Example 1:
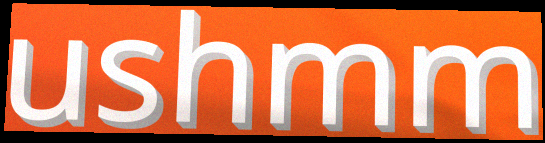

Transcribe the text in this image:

ushmm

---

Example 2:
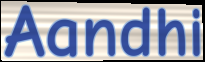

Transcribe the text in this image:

Aandhi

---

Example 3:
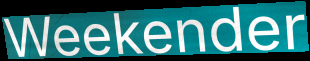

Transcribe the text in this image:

Weekender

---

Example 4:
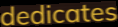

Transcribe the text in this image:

dedicates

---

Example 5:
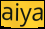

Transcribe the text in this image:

aiya